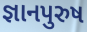
જ્ઞાનપુરુષ